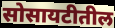
सोसायटीतील